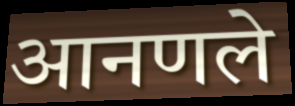
आनणले